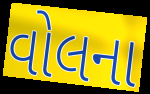
વોલના